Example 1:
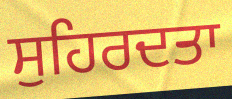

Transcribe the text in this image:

ਸੁਹਿਰਦਤਾ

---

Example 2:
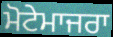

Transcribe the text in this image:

ਮੋਟੇਮਾਜਰਾ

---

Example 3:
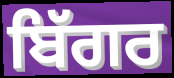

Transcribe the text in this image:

ਬਿੱਗਰ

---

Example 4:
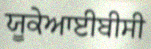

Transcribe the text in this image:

ਯੂਕੇਆਈਬੀਸੀ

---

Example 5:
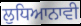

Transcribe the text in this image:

ਲੁਧਿਆਨਾਵੀ